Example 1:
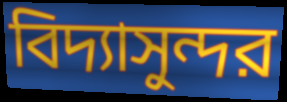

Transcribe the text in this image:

বিদ্যাসুন্দর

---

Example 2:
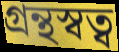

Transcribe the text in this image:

গ্রন্থস্বত্ব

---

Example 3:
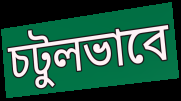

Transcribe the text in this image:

চটুলভাবে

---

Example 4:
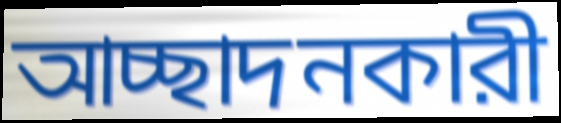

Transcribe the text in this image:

আচ্ছাদনকারী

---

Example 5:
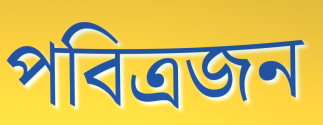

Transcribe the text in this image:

পবিত্রজন